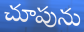
చూపును